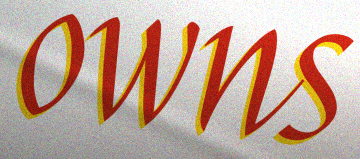
owns